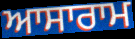
ਆਸਾਰਾਮ